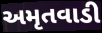
અમૃતવાડી